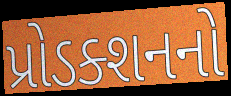
પ્રોડક્શનનો